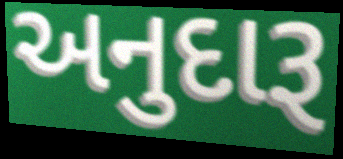
અનુદારૂ